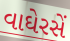
વાઘેરસેં